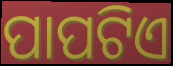
ପାପଟିଏ